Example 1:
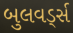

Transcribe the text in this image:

બુલવર્ડ્સ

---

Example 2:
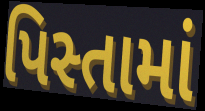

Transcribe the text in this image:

પિસ્તામાં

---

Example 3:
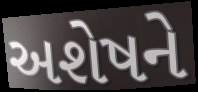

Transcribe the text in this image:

અશેષને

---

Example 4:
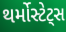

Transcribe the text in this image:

થર્મોસ્ટેટ્સ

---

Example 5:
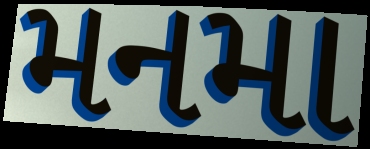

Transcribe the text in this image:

મનમા